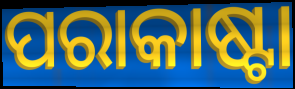
ପରାକାଷ୍ଟା